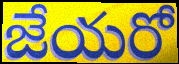
జేయరో